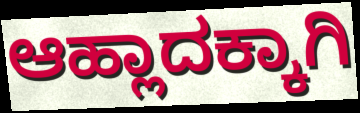
ಆಹ್ಲಾದಕ್ಕಾಗಿ